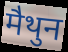
मैथुन